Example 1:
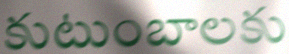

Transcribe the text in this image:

కుటుంబాలకు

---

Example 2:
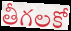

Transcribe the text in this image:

తీగలకో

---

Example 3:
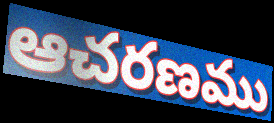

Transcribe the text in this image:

ఆచరణము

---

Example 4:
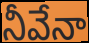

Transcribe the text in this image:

నీవేనా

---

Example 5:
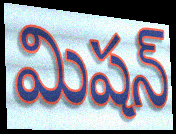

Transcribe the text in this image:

మిషన్